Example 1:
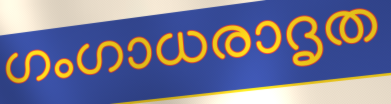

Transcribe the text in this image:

ഗംഗാധരാദൃത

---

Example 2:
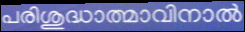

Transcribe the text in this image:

പരിശുദ്ധാത്മാവിനാൽ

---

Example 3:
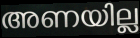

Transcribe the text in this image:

അണയില്ല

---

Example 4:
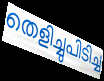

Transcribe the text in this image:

തെളിച്ചുപിടിച്ച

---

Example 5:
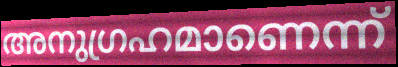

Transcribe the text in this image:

അനുഗ്രഹമാണെന്ന്